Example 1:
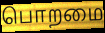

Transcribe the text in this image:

பொறமை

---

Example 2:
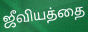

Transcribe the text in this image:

ஜீவியத்தை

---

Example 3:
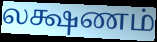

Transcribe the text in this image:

லக்ஷணம்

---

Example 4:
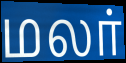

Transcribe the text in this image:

மலர்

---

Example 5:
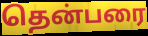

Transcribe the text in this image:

தென்பரை